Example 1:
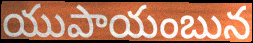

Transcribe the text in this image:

యుపాయంబున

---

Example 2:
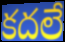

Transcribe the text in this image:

కదలే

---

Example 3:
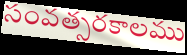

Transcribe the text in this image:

సంవత్సరకాలము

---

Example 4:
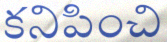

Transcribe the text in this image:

కనిపించి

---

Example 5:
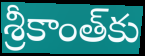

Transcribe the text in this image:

శ్రీకాంత్‌కు